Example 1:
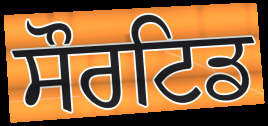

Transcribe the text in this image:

ਸੌਰਟਿਡ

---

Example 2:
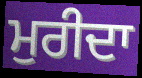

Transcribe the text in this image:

ਮੁਰੀਦਾ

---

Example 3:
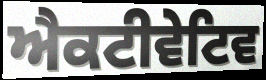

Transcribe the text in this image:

ਐਕਟੀਵੇਟਿਵ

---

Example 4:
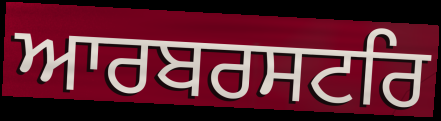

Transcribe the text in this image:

ਆਰਬਰਸਟਰਿ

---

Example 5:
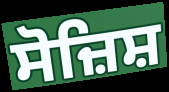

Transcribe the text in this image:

ਸੋਜ਼ਿਸ਼